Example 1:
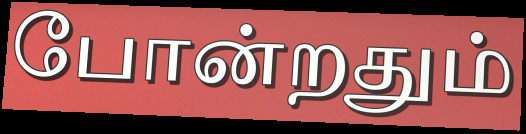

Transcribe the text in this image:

போன்றதும்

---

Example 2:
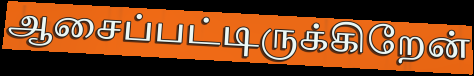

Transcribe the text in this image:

ஆசைப்பட்டிருக்கிறேன்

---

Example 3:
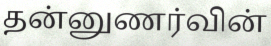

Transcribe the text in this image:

தன்னுணர்வின்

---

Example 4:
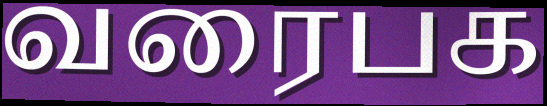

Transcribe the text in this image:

வரைபக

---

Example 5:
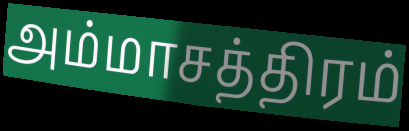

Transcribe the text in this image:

அம்மாசத்திரம்